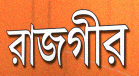
রাজগীর